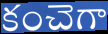
కంచెగా